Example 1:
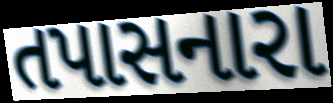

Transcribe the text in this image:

તપાસનારા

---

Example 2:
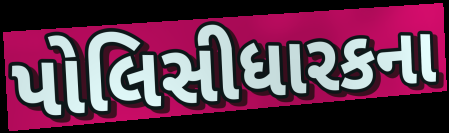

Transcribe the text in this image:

પોલિસીધારકના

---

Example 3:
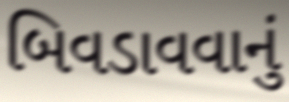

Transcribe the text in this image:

બિવડાવવાનું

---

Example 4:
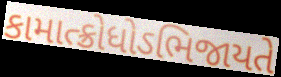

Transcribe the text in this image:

કામાત્ક્રોધોઽભિજાયતે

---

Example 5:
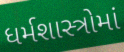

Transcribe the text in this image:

ધર્મશાસ્ત્રોમાં